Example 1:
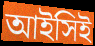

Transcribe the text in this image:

আইসিই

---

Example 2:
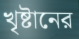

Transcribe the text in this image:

খৃষ্টানের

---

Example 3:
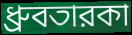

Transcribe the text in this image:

ধ্রুবতারকা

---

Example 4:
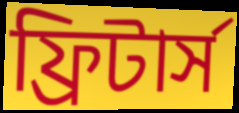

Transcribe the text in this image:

ফ্রিটার্স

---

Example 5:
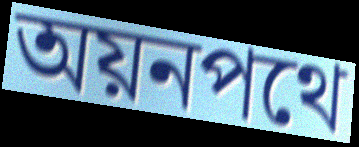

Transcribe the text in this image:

অয়নপথে